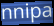
nnipa